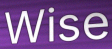
Wise